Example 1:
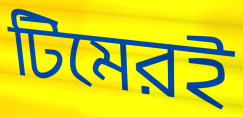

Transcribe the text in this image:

টিমেরই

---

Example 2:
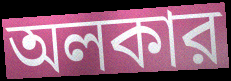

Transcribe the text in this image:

অলকার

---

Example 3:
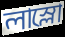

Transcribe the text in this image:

লাস্লো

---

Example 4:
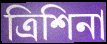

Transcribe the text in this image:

ত্রিশিনা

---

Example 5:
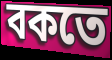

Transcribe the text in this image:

বকতে